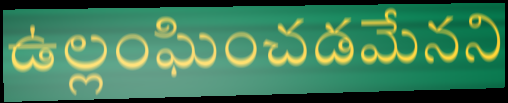
ఉల్లంఘించడమేనని